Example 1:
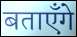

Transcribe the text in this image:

बताएँगे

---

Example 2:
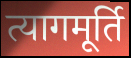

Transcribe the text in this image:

त्यागमूर्ति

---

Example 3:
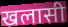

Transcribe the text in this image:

खलासी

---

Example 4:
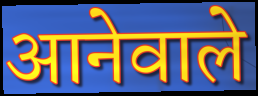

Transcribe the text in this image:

आनेवाले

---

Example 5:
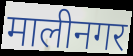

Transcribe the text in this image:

मालीनगर